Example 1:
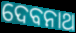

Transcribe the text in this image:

ଦେବନାଥ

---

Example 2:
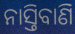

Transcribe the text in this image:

ନାସ୍ତିବାଣି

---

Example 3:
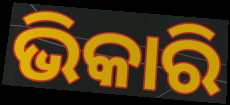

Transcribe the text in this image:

ଭିକାରି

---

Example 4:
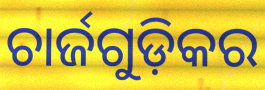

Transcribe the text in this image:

ଚାର୍ଜଗୁଡ଼ିକର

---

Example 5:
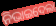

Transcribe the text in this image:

ନିଭାଇଦେଲା